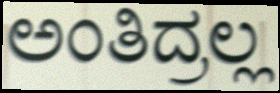
ಅಂತಿದ್ರಲ್ಲ